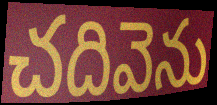
చదివెను